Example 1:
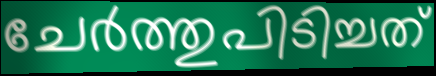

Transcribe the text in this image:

ചേർത്തുപിടിച്ചത്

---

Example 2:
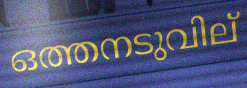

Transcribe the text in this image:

ഒത്തനടുവില്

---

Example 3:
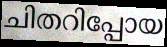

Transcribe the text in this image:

ചിതറിപ്പോയ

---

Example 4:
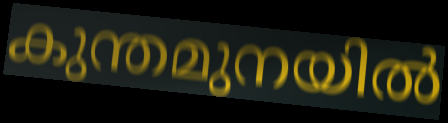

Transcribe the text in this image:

കുന്തമുനയിൽ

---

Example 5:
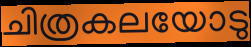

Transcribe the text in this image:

ചിത്രകലയോടു